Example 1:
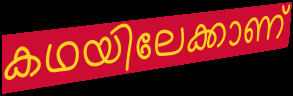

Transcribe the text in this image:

കഥയിലേക്കാണ്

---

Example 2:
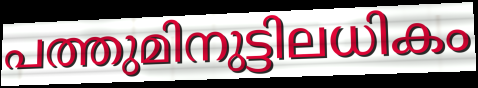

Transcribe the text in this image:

പത്തുമിനുട്ടിലധികം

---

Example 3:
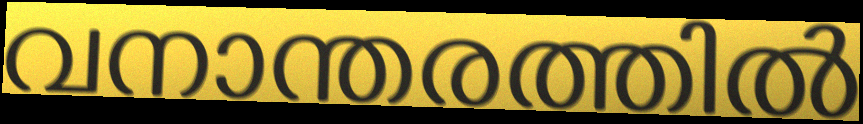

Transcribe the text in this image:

വനാന്തരത്തിൽ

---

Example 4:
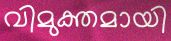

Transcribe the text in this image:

വിമുക്തമായി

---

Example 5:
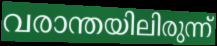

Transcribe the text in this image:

വരാന്തയിലിരുന്ന്